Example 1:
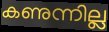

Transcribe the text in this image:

കണുന്നില്ല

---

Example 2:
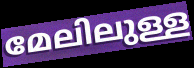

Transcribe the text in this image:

മേലിലുള്ള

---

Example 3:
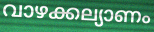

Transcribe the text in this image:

വാഴക്കല്യാണം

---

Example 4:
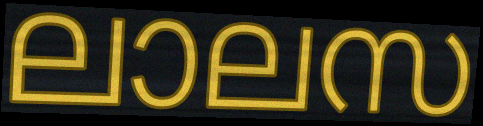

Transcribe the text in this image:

ലാലസ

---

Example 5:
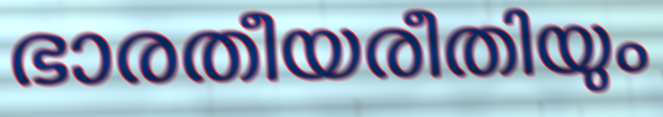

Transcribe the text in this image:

ഭാരതീയരീതിയും